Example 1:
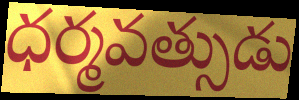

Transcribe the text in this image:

ధర్మవత్సుడు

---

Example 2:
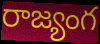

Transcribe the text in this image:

రాజ్యంగ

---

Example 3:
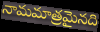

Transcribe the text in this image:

నామమాత్రమైనది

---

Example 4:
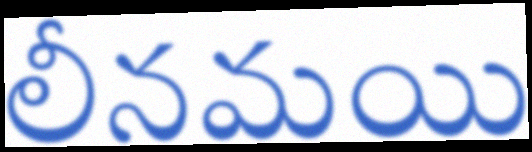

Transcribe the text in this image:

లీనమయి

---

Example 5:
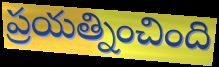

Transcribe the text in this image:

ప్రయత్నించింది